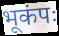
भूकंपः